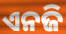
ଏନଜି